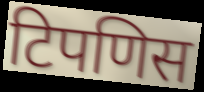
टिपणिस